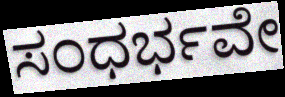
ಸಂಧರ್ಭವೇ